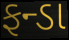
ફન્ડા